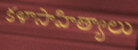
కళాసాహిత్యాలు